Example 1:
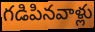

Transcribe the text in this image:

గడిపినవాళ్లు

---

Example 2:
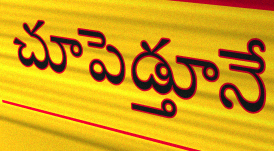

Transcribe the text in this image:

చూపెడ్తూనే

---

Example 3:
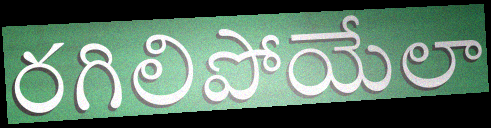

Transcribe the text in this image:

రగిలిపోయేలా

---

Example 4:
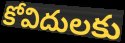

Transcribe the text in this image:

కోవిదులకు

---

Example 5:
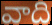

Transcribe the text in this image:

వాది